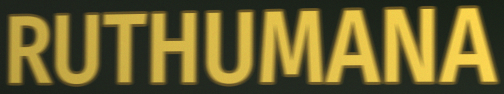
RUTHUMANA